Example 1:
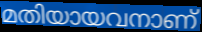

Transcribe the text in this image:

മതിയായവനാണ്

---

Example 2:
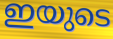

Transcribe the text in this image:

ഇയുടെ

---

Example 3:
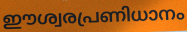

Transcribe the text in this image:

ഈശ്വരപ്രണിധാനം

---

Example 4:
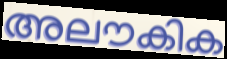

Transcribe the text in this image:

അലൗകിക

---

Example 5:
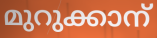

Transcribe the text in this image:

മുറുക്കാന്